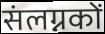
संलग्नकों